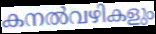
കനൽവഴികളും